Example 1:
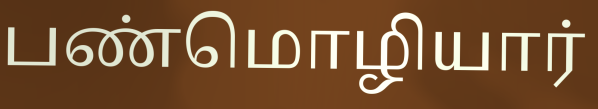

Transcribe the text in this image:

பண்மொழியார்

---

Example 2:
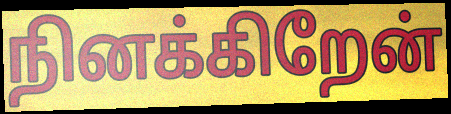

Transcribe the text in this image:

நினக்கிறேன்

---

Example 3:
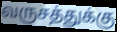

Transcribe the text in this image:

வருசத்துக்கு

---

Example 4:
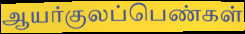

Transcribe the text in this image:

ஆயர்குலப்பெண்கள்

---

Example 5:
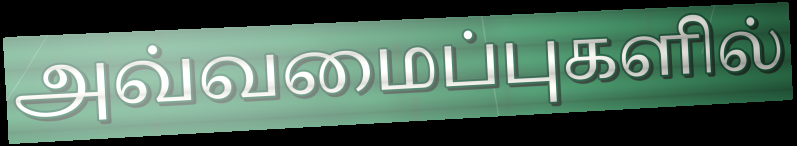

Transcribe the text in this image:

அவ்வமைப்புகளில்